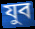
যুব